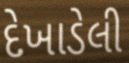
દેખાડેલી